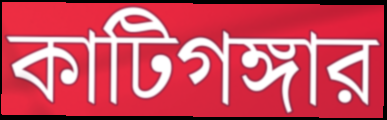
কাটিগঙ্গার